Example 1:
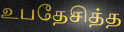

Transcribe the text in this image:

உபதேசித்த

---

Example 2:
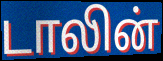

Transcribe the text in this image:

டாலின்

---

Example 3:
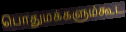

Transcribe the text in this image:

பொதுமக்களும்கூட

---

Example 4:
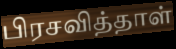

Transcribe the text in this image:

பிரசவித்தாள்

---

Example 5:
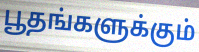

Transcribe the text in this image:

பூதங்களுக்கும்